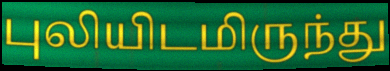
புலியிடமிருந்து